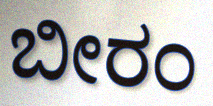
ಬೀರಂ